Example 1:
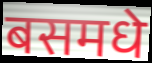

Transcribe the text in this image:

बसमधे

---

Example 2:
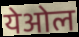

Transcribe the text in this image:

येओल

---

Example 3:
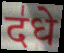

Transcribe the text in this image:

द॑धे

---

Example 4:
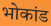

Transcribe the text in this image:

भोकांड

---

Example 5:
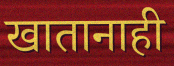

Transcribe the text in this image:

खातानाही